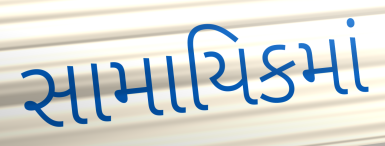
સામાયિકમાં